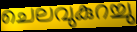
ചെലവുകുറച്ചു